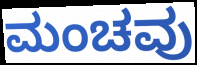
ಮಂಚವು